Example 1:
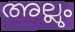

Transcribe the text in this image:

അല്ലും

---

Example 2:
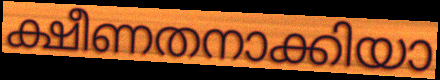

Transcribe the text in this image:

ക്ഷീണതനാക്കിയാ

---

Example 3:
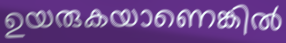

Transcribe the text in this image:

ഉയരുകയാണെങ്കിൽ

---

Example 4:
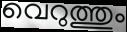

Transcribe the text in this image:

വെറുത്തും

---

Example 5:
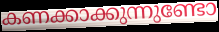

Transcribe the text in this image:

കണക്കാക്കുന്നുണ്ടോ